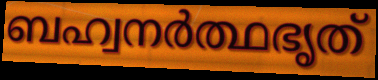
ബഹ്വനർത്ഥഭൃത്